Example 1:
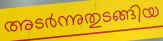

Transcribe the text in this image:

അടർന്നുതുടങ്ങിയ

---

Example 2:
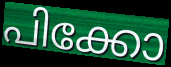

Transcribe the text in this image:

പിക്കോ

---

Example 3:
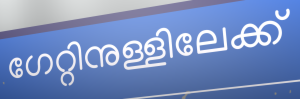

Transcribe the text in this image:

ഗേറ്റിനുള്ളിലേക്ക്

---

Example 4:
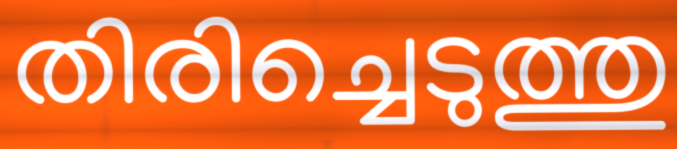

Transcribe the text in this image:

തിരിച്ചെടുത്തു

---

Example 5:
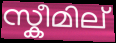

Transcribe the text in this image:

സ്കീമില്